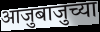
आजुबाजुच्या